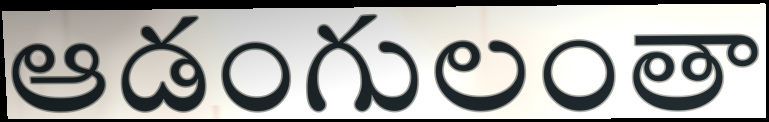
ఆడంగులంతా